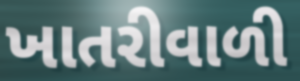
ખાતરીવાળી